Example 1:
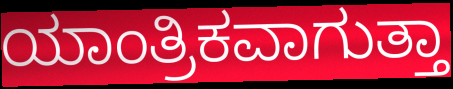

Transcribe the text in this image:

ಯಾಂತ್ರಿಕವಾಗುತ್ತಾ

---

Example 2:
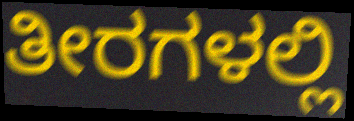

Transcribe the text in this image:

ತೀರಗಳಲ್ಲಿ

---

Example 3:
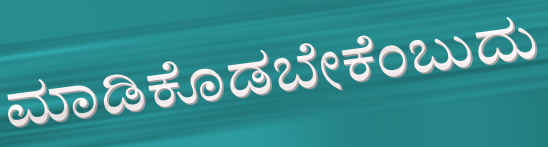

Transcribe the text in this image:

ಮಾಡಿಕೊಡಬೇಕೆಂಬುದು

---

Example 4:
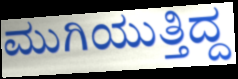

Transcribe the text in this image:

ಮುಗಿಯುತ್ತಿದ್ದ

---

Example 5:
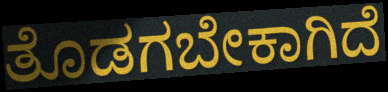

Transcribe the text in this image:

ತೊಡಗಬೇಕಾಗಿದೆ